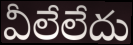
వీలేలేదు